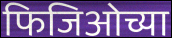
फिजिओच्या